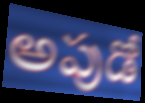
అపుడో